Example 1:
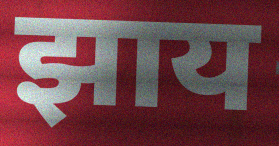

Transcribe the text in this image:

झाय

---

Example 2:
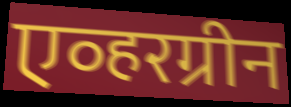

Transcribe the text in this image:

एव्हरग्रीन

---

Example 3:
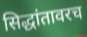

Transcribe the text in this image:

सिद्धांतावरच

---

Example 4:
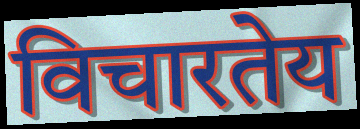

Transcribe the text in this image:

विचारतेय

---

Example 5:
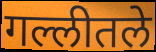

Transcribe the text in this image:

गल्लीतले